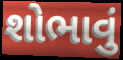
શોભાવું